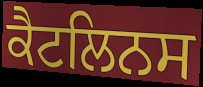
ਕੈਟਲਿਨਸ